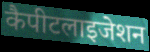
कैपीटलाइजेशन